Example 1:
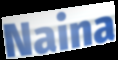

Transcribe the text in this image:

Naina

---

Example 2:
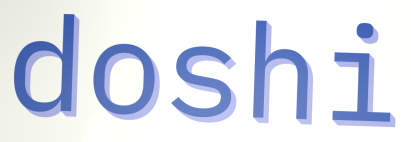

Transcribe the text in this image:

doshi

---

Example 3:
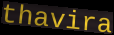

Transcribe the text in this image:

thavira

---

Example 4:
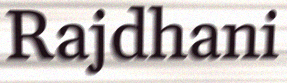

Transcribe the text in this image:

Rajdhani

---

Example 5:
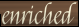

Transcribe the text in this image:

enriched